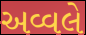
અવ્વલે